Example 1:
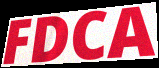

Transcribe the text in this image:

FDCA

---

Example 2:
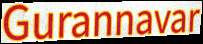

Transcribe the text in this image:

Gurannavar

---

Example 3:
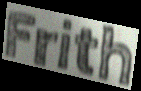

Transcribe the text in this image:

Frith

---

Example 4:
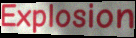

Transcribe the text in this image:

Explosion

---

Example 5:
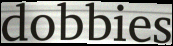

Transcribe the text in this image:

dobbies